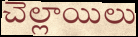
చెల్లాయిలు